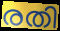
രതി